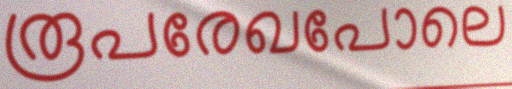
രൂപരേഖപോലെ